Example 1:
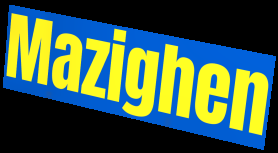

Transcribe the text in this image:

Mazighen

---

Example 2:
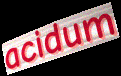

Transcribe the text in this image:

acidum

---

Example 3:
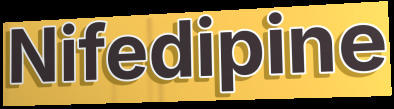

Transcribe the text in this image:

Nifedipine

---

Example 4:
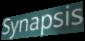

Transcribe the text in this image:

Synapsis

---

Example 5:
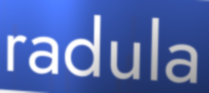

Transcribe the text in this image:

radula